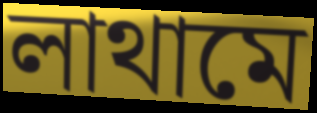
লাথামে